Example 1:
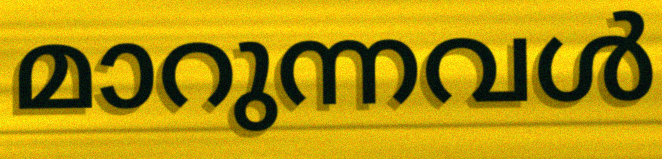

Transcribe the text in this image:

മാറുന്നവൾ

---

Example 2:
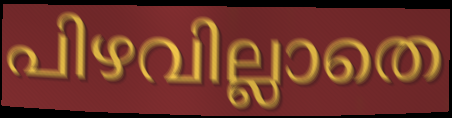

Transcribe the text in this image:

പിഴവില്ലാതെ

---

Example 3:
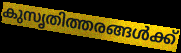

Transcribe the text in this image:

കുസൃതിത്തരങ്ങൾക്ക്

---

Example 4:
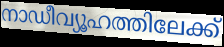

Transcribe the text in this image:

നാഡീവ്യൂഹത്തിലേക്ക്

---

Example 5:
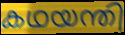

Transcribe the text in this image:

കഥയന്തി